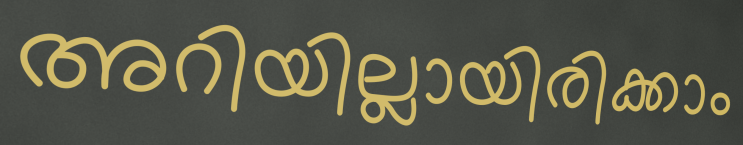
അറിയില്ലായിരിക്കാം